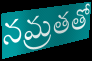
నమ్రతతో